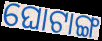
ଘୋଟାଙ୍ଗ